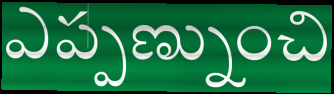
ఎప్పణ్నుంచి